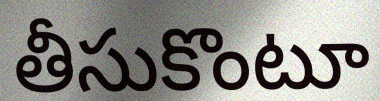
తీసుకొంటూ